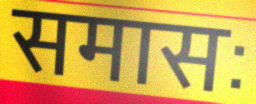
समासः